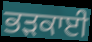
ਭੜਕਾਈ